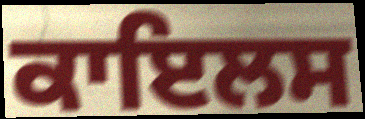
ਕਾਇਲਸ